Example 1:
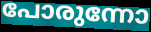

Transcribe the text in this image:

പോരുന്നോ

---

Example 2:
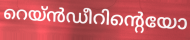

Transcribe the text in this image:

റെയ്ൻഡീറിന്റെയോ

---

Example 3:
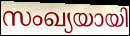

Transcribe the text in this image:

സംഖ്യയായി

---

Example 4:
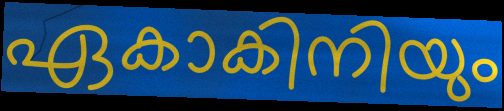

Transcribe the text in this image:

ഏകാകിനിയും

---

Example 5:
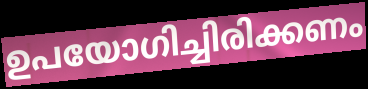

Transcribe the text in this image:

ഉപയോഗിച്ചിരിക്കണം